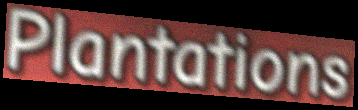
Plantations